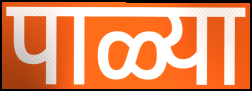
पाळ्या